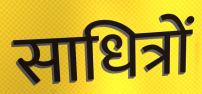
साधित्रों